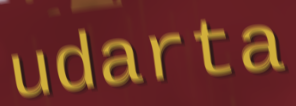
udarta